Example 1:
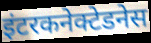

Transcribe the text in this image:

इंटरकनेक्टेडनेस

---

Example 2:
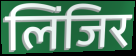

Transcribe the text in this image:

लिंजिर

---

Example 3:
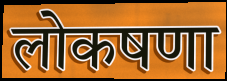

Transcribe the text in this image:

लोकषणा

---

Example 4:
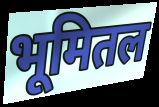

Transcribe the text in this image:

भूमितल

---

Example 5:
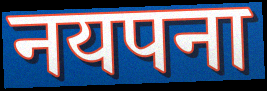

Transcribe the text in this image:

नयपना